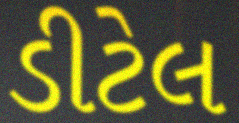
ડીટેલ